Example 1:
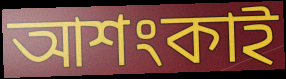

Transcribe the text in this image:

আশংকাই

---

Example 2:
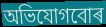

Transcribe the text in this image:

অভিযোগবোৰ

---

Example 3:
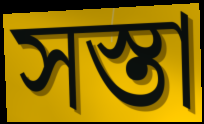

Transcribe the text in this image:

সস্তা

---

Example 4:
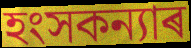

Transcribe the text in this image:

হংসকন্যাৰ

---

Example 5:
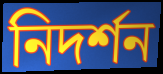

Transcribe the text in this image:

নিদৰ্শন